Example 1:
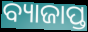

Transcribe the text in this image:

ବ୍ୟାଜାପ୍ତ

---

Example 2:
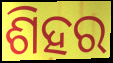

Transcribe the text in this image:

ଶିହର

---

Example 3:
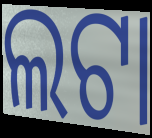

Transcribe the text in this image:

ଲଟା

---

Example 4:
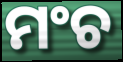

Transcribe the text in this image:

ମଂଚ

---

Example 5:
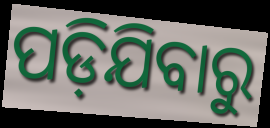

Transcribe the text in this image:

ପଡ଼ିଯିବାରୁ